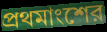
প্রথমাংশের